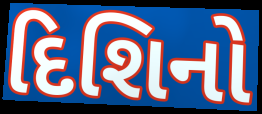
દિશિનો